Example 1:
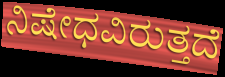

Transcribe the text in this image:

ನಿಷೇಧವಿರುತ್ತದೆ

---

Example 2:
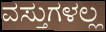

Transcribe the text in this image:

ವಸ್ತುಗಳಲ್ಲ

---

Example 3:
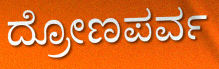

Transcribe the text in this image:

ದ್ರೋಣಪರ್ವ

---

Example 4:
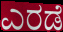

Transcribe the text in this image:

ಎರಡೆ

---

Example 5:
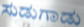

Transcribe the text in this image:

ಸುಡುಗಾಡು